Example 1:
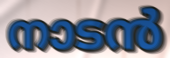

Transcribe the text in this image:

നാടൻ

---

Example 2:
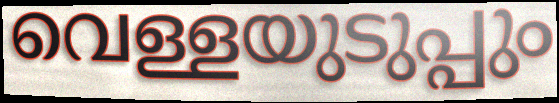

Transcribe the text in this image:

വെള്ളയുടുപ്പും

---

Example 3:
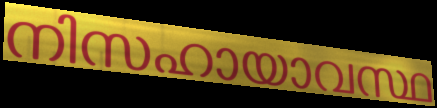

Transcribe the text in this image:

നിസഹായാവസ്ഥ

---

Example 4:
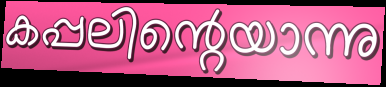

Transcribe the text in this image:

കപ്പലിന്റെയാന്നു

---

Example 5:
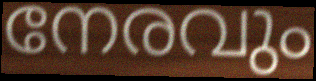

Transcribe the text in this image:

നേരവും